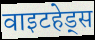
वाइटहेड्स